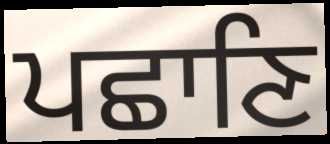
ਪਛਾਣਿ